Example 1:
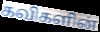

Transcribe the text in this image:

கவிகளின்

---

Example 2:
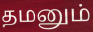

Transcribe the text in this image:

தமனும்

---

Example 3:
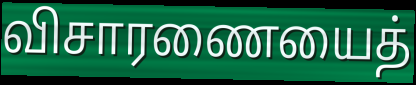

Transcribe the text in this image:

விசாரணையைத்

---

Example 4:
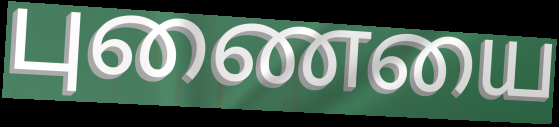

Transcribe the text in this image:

புணையை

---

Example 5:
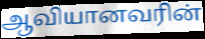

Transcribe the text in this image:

ஆவியானவரின்